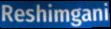
Reshimgani